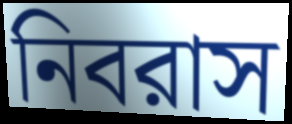
নিবরাস